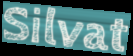
Silvat